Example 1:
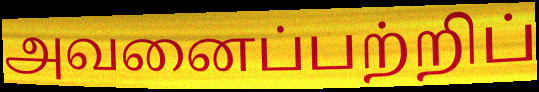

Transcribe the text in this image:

அவனைப்பற்றிப்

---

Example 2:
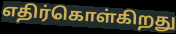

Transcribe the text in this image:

எதிர்கொள்கிறது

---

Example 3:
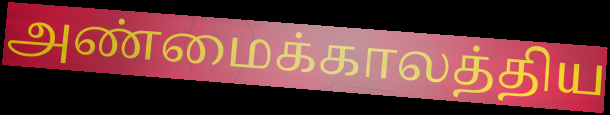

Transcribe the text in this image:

அண்மைக்காலத்திய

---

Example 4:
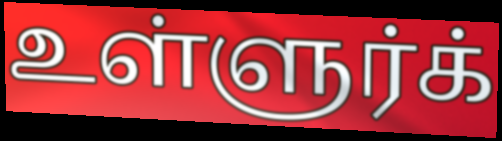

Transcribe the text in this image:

உள்ளுர்க்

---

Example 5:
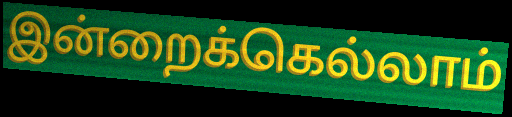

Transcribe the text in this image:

இன்றைக்கெல்லாம்